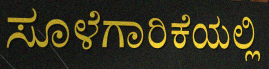
ಸೂಳೆಗಾರಿಕೆಯಲ್ಲಿ